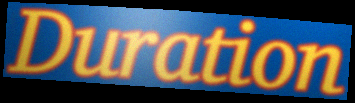
Duration